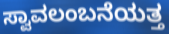
ಸ್ವಾವಲಂಬನೆಯತ್ತ